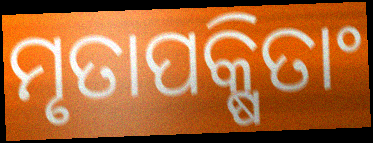
ମୃତାପକ୍ଷିତାଂ